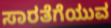
ಸಾರತೆಗೆಯುವ